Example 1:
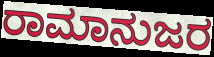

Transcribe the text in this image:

ರಾಮಾನುಜರ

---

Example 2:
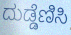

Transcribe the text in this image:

ದುಡ್ಡೆಣಿಸಿ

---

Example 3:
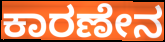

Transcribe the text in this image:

ಕಾರಣೇನ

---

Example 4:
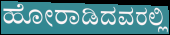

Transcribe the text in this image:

ಹೋರಾಡಿದವರಲ್ಲಿ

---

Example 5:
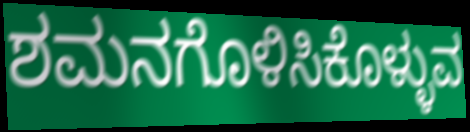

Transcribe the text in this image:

ಶಮನಗೊಳಿಸಿಕೊಳ್ಳುವ